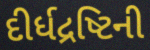
દીર્ધદ્રષ્ટિની